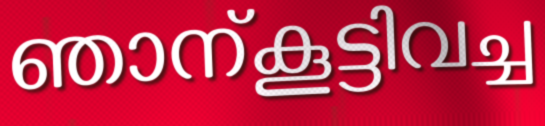
ഞാന്കൂട്ടിവച്ച